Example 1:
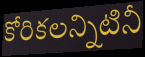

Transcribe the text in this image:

కోరికలన్నిటినీ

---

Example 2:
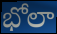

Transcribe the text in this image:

భోలా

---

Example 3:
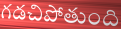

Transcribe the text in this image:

గడచిపోతుంది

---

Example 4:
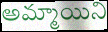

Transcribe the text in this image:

అమ్మాయిని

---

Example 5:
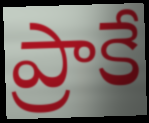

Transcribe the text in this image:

ప్రాకే